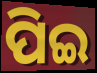
ପିଇ